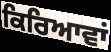
ਕਿਰਿਆਵਾਂ